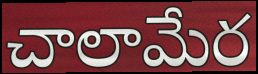
చాలామేర